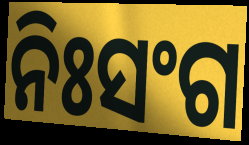
ନିଃସଂଗ